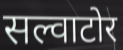
सल्वाटोर